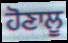
ਹੋਣਾਲੂ